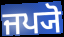
ਜਪ੍ਯੋ